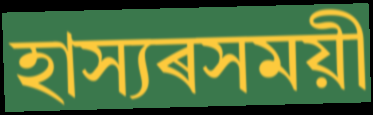
হাস্যৰসময়ী